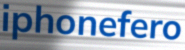
iphonefero